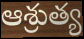
ఆశ్రుత్య